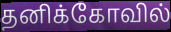
தனிக்கோவில்